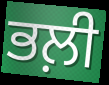
ਭਲ਼ੀ